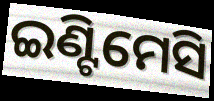
ଇଣ୍ଟିମେସି